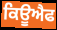
ਕਿਊਐਫ